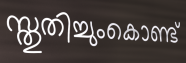
സ്തുതിച്ചുംകൊണ്ട്